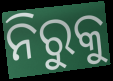
ନିରୁକୁ